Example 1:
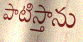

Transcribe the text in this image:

పాటిస్తాను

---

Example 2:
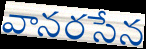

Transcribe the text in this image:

వానరసేన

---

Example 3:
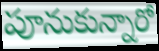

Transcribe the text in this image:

పూనుకున్నారో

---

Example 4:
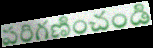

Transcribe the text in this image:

పరిగణించండి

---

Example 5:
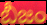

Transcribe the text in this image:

బీజం